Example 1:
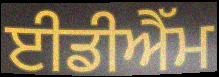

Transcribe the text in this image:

ਈਡੀਐੱਮ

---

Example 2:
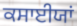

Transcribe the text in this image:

ਕਸਾਈਯਾਂ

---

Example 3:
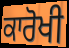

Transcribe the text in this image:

ਕਾਰੋਖੀ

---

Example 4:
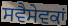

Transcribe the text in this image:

ਸਵੈਸੇਵਕਾਂ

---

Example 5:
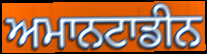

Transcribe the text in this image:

ਅਮਾਨਟਾਡੀਨ